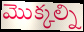
మొక్కల్ని